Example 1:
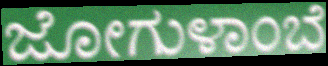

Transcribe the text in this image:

ಜೋಗುಳಾಂಬೆ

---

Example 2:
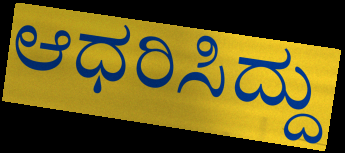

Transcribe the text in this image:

ಆಧರಿಸಿದ್ದು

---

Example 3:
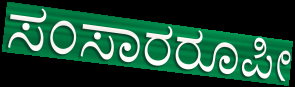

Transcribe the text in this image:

ಸಂಸಾರರೂಪೀ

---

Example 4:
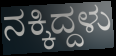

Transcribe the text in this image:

ನಕ್ಕಿದ್ದಳು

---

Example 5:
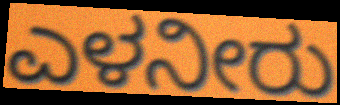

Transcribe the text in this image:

ಎಳನೀರು